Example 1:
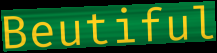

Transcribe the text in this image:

Beutiful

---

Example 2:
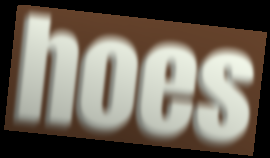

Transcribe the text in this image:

hoes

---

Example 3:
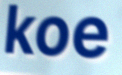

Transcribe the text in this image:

koe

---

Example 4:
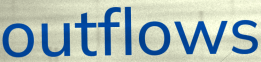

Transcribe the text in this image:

outflows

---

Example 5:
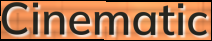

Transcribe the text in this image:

Cinematic